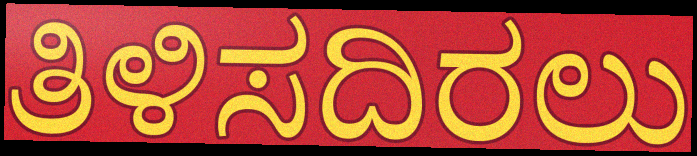
ತಿಳಿಸದಿರಲು